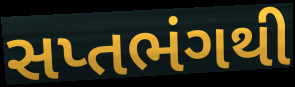
સપ્તભંગથી